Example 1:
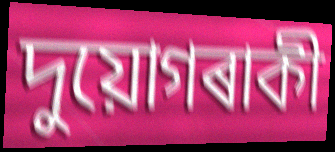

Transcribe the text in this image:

দুয়োগৰাকী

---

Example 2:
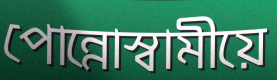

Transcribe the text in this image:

পোন্নোস্বামীয়ে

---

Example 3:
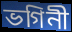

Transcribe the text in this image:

ভগিনী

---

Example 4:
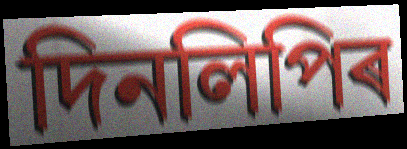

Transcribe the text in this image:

দিনলিপিৰ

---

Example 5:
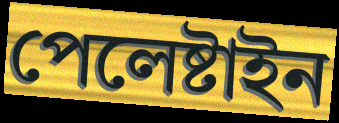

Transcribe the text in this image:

পেলেষ্টাইন